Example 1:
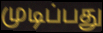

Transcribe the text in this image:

முடிப்பது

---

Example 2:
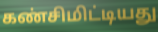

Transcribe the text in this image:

கண்சிமிட்டியது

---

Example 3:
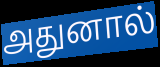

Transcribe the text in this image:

அதுனால்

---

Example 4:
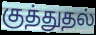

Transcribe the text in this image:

குத்துதல்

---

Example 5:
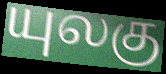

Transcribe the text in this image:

யுலகு